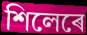
শিলেৰে